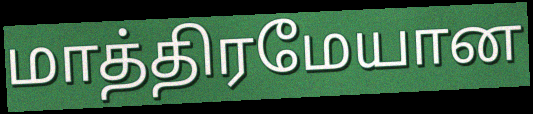
மாத்திரமேயான